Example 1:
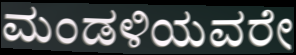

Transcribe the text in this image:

ಮಂಡಳಿಯವರೇ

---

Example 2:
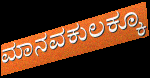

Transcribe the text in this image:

ಮಾನವಕುಲಕ್ಕೂ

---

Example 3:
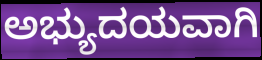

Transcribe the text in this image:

ಅಭ್ಯುದಯವಾಗಿ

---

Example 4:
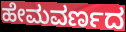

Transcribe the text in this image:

ಹೇಮವರ್ಣದ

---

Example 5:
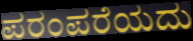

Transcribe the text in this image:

ಪರಂಪರೆಯದು